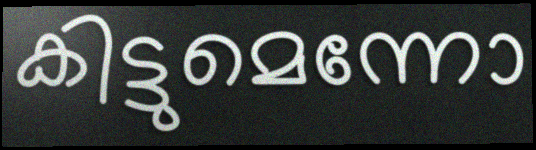
കിട്ടുമെന്നോ